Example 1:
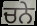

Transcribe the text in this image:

ਚਨੇ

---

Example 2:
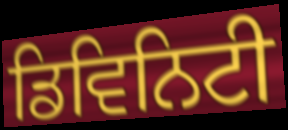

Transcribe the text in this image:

ਡਿਵਿਨਿਟੀ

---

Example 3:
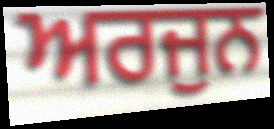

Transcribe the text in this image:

ਅਰਜੁਨ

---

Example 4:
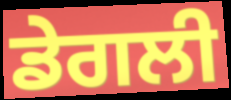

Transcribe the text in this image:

ਡੇਗਲੀ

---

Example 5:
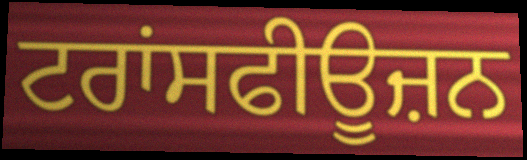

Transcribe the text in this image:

ਟਰਾਂਸਫੀਊਜ਼ਨ